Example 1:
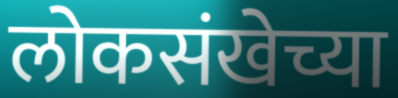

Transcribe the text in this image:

लोकसंखेच्या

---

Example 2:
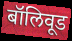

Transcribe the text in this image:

बॉलिवूड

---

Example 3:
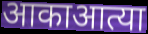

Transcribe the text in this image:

आकाआत्या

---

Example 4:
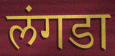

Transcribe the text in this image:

लंगडा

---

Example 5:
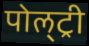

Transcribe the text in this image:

पोल्ट्री